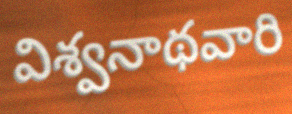
విశ్వనాథవారి